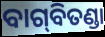
ବାଗ୍‍ବିତଣ୍ଡା